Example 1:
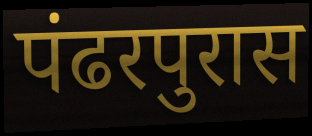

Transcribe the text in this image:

पंढरपुरास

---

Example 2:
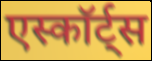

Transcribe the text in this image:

एस्कॉर्ट्स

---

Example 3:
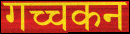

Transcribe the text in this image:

गच्चकन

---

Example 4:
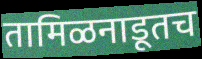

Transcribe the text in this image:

तामिळनाडूतच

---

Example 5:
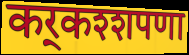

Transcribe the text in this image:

कर्कश्शपणा